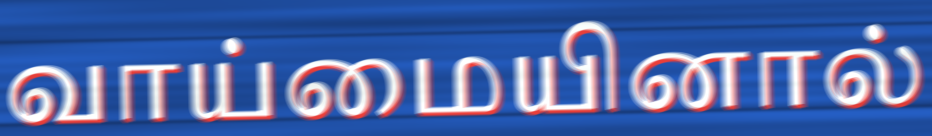
வாய்மையினால்